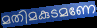
മതിമകുടമണേ